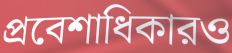
প্রবেশাধিকারও